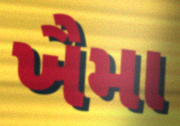
ખૈમા